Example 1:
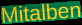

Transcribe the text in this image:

Mitalben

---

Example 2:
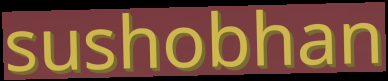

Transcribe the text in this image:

sushobhan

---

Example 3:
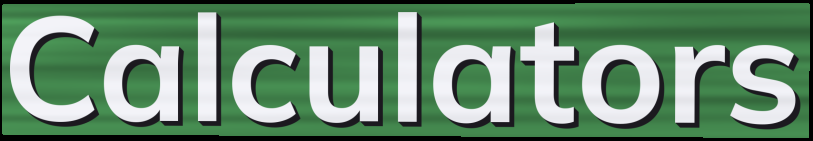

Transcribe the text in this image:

Calculators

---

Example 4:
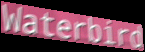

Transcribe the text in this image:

Waterbird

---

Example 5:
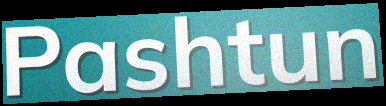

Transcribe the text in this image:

Pashtun